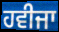
ਹਵੀਜਾ